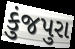
કુંજપુરા